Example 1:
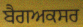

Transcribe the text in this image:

ਬੈਗਅਕਸਰ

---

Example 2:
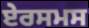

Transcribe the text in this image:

ਏਰਸਮਸ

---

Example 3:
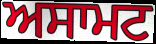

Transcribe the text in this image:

ਅਸਾਮਟ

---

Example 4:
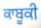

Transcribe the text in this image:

ਕਾਬੂਕੀ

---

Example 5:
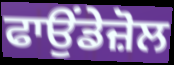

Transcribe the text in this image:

ਫਾਉਂਡੇਜ਼ੋਲ